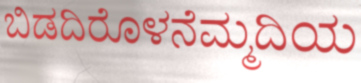
ಬಿಡದಿರೊಳನೆಮ್ಮದಿಯ